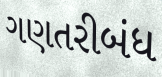
ગણતરીબંધ